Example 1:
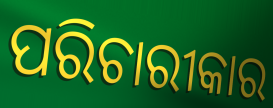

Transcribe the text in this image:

ପରିଚାରୀକାର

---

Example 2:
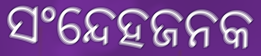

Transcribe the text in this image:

ସଂନ୍ଦେହଜନକ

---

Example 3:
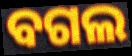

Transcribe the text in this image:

ବଗଲ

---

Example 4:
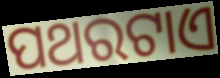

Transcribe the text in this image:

ପଥରଟାଏ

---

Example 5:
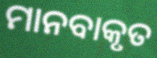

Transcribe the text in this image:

ମାନବାକୃତ